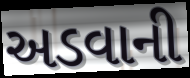
અડવાની